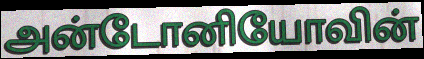
அன்டோனியோவின்